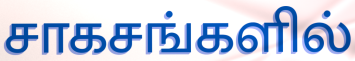
சாகசங்களில்